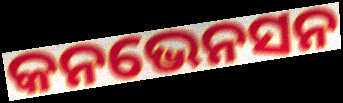
କନଭେନସନ